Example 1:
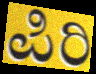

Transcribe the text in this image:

ಪಿರಿ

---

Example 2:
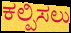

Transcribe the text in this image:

ಕಲ್ಪಿಸಲು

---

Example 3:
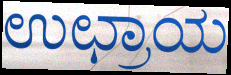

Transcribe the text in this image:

ಉಛ್ರಾಯ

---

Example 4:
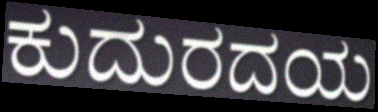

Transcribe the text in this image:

ಕುದುರದಯ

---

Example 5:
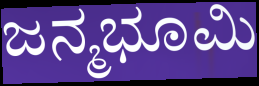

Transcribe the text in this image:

ಜನ್ಮಭೂಮಿ